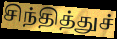
சிந்தித்துச்